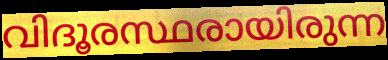
വിദൂരസ്ഥരായിരുന്ന